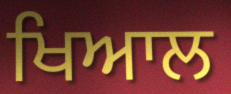
ਖਿਆਲ